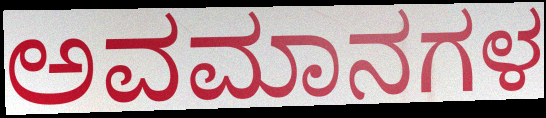
ಅವಮಾನಗಳ